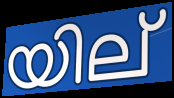
യില്